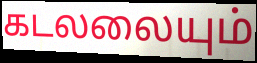
கடலலையும்